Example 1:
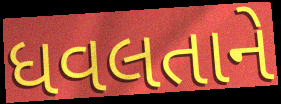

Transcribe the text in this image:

ધવલતાને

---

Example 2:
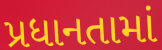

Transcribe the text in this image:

પ્રધાનતામાં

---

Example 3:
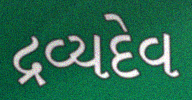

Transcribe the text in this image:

દ્રવ્યદેવ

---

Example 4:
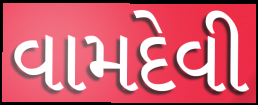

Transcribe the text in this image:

વામદેવી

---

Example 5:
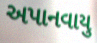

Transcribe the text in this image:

અપાનવાયુ